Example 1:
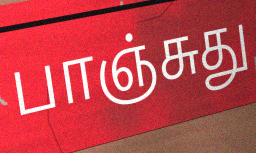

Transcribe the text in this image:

பாஞ்சுது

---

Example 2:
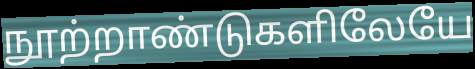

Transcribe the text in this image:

நூற்றாண்டுகளிலேயே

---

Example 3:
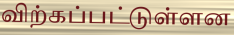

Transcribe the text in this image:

விற்கப்பட்டுள்ளன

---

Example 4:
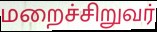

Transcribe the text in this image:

மறைச்சிறுவர்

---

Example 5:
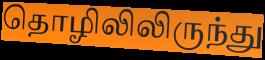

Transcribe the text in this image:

தொழிலிலிருந்து